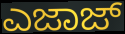
ಎಜಾಜ್